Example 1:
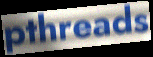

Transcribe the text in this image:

pthreads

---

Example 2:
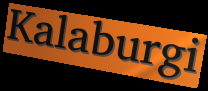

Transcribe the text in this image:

Kalaburgi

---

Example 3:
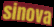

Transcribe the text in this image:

sinova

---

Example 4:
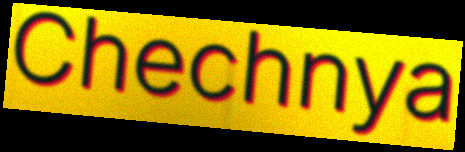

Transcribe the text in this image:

Chechnya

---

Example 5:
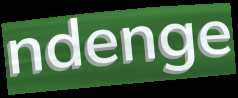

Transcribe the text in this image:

ndenge